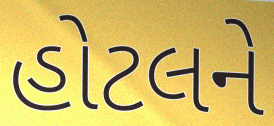
હોટલને